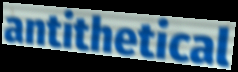
antithetical